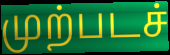
முற்படச்